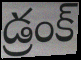
డ్రంక్